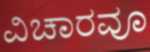
ವಿಚಾರವೂ